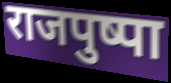
राजपुष्पा